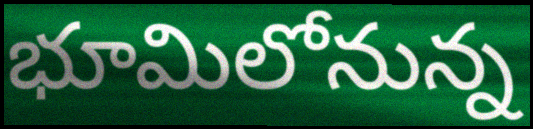
భూమిలోనున్న